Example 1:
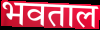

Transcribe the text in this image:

भवताल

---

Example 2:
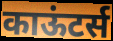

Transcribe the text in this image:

काऊंटर्स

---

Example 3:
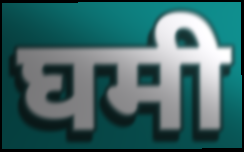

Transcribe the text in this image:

घमी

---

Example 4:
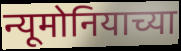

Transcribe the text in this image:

न्यूमोनियाच्या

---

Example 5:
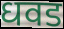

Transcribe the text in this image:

धवड